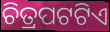
ଚିତ୍ରପଟଟିଏ